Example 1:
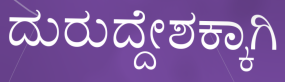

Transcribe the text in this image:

ದುರುದ್ದೇಶಕ್ಕಾಗಿ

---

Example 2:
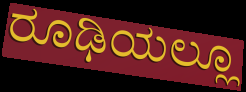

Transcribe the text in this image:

ರೂಢಿಯಲ್ಲೂ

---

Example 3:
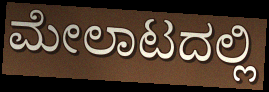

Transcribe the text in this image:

ಮೇಲಾಟದಲ್ಲಿ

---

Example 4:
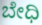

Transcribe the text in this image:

ಬೇಧಿ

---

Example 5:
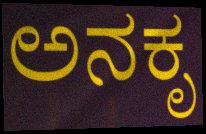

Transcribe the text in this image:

ಅನಕೃ